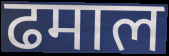
ढमाल